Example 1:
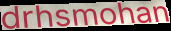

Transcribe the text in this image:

drhsmohan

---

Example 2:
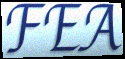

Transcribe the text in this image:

FEA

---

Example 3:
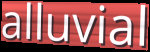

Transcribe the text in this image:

alluvial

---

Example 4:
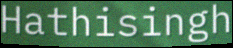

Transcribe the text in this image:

Hathisingh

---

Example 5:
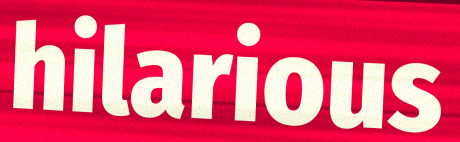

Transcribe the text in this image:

hilarious